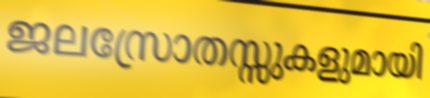
ജലസ്രോതസ്സുകളുമായി